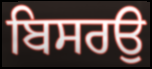
ਬਿਸਰਉ